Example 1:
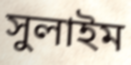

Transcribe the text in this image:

সুলাইম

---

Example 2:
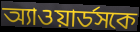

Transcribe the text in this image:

অ্যাওয়ার্ডসকে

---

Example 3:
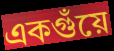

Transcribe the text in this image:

একগুঁয়ে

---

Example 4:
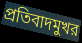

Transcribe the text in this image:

প্রতিবাদমুখর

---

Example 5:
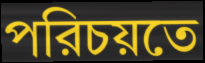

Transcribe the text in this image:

পরিচয়তে